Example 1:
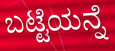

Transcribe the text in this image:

ಬಟ್ಟೆಯನ್ನೆ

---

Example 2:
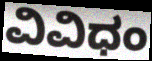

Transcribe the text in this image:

ವಿವಿಧಂ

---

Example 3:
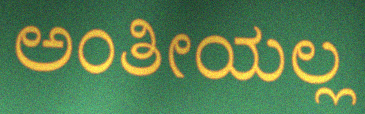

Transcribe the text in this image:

ಅಂತೀಯಲ್ಲ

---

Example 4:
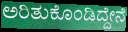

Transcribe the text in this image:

ಅರಿತುಕೊಂಡಿದ್ದೇನೆ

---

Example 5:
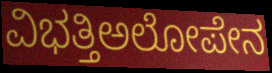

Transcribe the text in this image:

ವಿಭತ್ತಿಅಲೋಪೇನ